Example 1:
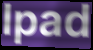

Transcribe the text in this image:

Ipad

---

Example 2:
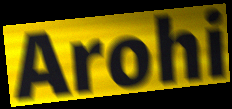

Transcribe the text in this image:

Arohi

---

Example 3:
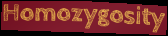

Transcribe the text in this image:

Homozygosity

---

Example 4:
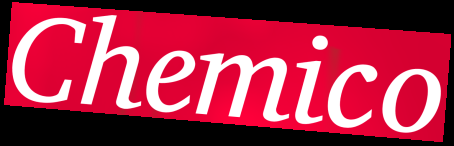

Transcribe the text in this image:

Chemico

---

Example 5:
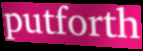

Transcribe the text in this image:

putforth